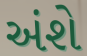
અંશે